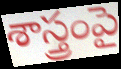
శాస్త్రంపై